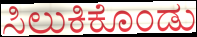
ಸಿಲುಕಿಕೊಂಡು